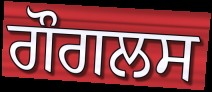
ਗੌਗਲਸ